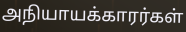
அநியாயக்காரர்கள்